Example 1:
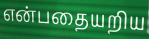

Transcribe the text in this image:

என்பதையறிய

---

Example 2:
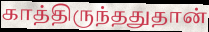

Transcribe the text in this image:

காத்திருந்ததுதான்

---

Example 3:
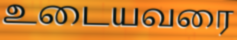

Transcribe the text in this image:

உடையவரை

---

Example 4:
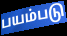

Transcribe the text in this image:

பயம்படு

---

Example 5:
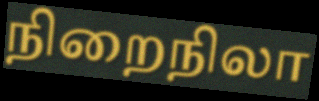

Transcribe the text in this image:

நிறைநிலா